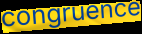
congruence